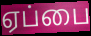
ஏப்பை